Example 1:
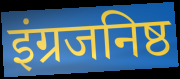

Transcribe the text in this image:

इंग्रजनिष्ठ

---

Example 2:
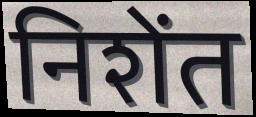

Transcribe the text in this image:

निशेंत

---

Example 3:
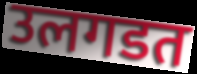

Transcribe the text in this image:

उलगडत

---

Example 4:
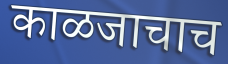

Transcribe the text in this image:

काळजाचाच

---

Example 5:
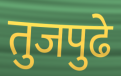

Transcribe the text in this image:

तुजपुढे